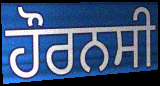
ਹੌਰਨਸੀ